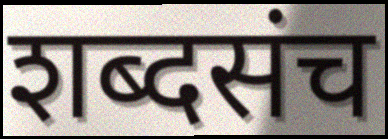
शब्दसंच